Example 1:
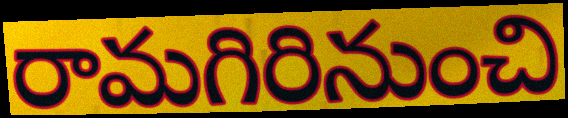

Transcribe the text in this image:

రామగిరినుంచి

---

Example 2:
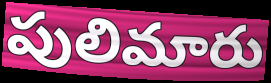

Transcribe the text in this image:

పులిమారు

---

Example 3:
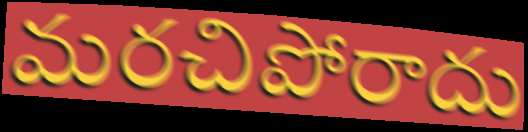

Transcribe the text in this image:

మరచిపోరాదు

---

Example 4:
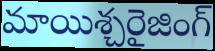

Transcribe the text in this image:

మాయిశ్చరైజింగ్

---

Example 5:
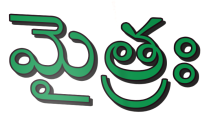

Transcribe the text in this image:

మైత్రః